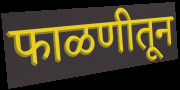
फाळणीतून